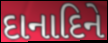
દાનાદિને